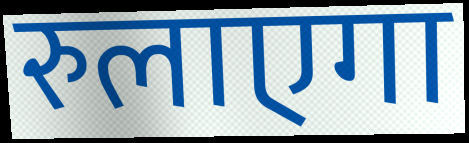
रुलाएगा